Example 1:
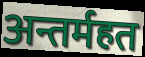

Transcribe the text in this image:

अन्तर्महत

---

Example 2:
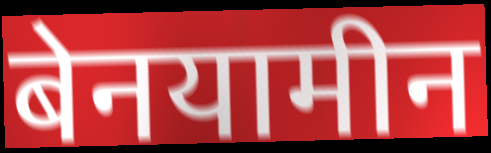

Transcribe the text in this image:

बेनयामीन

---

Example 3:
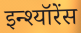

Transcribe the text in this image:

इन्श्यॉरेंस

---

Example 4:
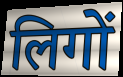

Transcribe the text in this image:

लिगों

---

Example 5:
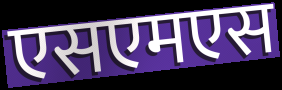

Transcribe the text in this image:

एसएमएस